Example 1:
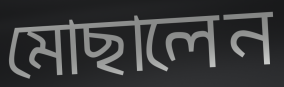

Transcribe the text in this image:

মোছালেন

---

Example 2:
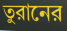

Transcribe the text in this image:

তুরানের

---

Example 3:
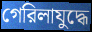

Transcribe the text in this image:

গেরিলাযুদ্ধে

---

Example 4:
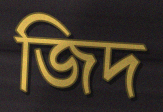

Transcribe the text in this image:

জিদ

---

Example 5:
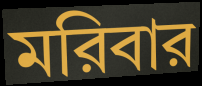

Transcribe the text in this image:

মরিবার